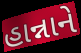
હાન્નાને